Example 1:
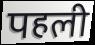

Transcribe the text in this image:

पहली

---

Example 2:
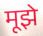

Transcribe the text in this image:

मूझे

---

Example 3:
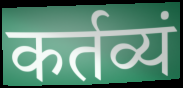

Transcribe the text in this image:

कर्तव्यं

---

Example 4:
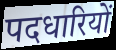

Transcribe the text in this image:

पदधारियों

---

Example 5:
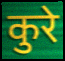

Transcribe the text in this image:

कुरे